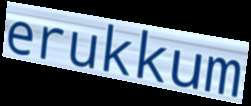
erukkum